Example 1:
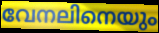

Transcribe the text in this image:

വേനലിനെയും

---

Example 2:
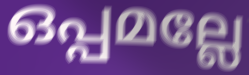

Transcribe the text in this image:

ഒപ്പമല്ലേ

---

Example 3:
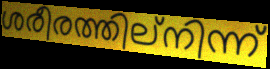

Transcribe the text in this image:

ശരീരത്തില്നിന്ന്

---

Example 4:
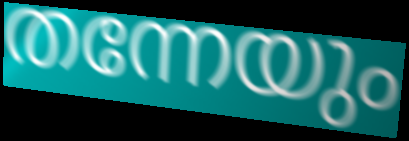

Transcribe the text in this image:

തന്നേയും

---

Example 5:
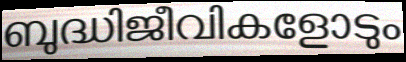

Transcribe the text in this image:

ബുദ്ധിജീവികളോടും